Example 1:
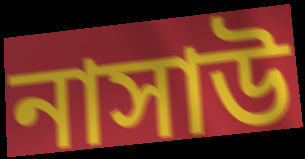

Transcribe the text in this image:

নাসাউ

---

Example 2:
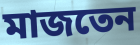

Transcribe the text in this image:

মাজতেন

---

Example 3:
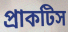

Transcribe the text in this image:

প্রাকটিস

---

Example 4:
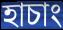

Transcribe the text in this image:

হাচাং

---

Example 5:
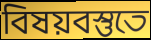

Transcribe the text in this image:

বিষয়বস্তুতে